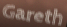
Gareth